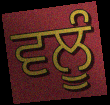
ਵਲੂੰ